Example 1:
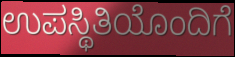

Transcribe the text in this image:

ಉಪಸ್ಥಿತಿಯೊಂದಿಗೆ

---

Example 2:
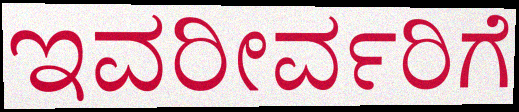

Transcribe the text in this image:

ಇವರೀರ್ವರಿಗೆ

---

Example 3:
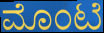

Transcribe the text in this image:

ಮೊಂಟೆ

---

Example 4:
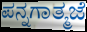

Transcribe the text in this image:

ಪನ್ನಗಾತ್ಮಜೆ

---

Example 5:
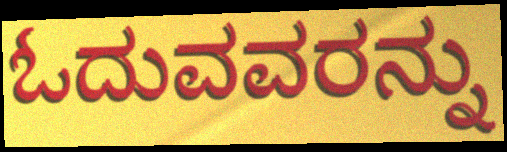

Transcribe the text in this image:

ಓದುವವರನ್ನು